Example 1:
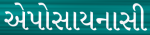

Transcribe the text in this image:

એપોસાયનાસી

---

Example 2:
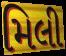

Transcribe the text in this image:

મિલી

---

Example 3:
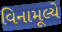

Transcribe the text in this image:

વિનામૂલ્યે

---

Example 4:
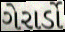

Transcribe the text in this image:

ગેરાર્ડો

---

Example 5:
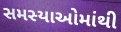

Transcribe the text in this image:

સમસ્યાઓમાંથી